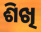
ଶିଖି